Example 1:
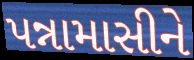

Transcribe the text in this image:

પન્નામાસીને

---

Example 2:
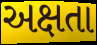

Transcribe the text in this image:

અક્ષતા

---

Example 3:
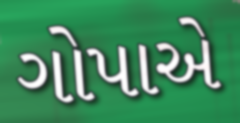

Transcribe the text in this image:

ગોપાએ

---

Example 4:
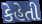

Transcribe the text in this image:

કેહેતી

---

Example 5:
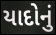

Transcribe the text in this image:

યાદોનું